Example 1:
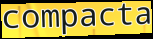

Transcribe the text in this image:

compacta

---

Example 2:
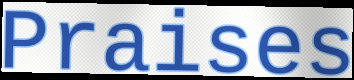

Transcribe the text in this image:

Praises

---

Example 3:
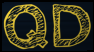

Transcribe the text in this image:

QD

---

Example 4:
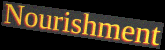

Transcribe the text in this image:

Nourishment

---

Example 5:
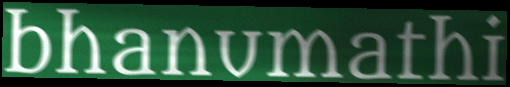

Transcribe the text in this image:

bhanumathi